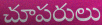
చూపరులు